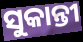
ସୁକାନ୍ତୀ